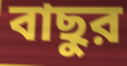
বাছুর